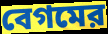
বেগমের